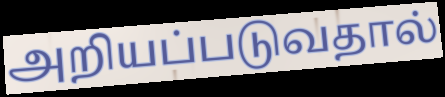
அறியப்படுவதால்